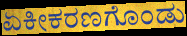
ಏಕೀಕರಣಗೊಂಡು